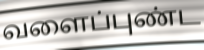
வளைப்புண்ட